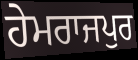
ਹੇਮਰਾਜਪੁਰ